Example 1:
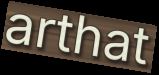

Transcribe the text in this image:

arthat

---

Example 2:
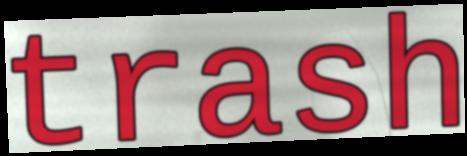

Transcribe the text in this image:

trash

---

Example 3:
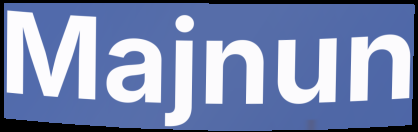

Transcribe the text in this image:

Majnun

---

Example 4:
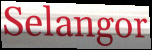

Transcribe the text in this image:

Selangor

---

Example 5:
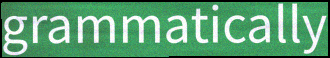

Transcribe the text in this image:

grammatically